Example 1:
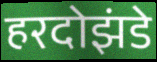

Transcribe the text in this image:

हरदोझंडे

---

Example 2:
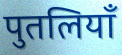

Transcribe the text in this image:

पुतलियाँ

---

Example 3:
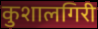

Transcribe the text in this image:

कुशालगिरी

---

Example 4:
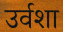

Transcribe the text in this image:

उर्वशा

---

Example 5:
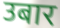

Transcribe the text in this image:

उबार